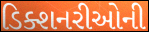
ડિક્શનરીઓની